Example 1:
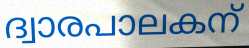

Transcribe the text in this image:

ദ്വാരപാലകന്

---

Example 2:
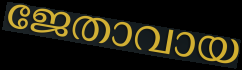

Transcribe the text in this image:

ജേതാവായ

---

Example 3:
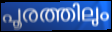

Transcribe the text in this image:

പൂരത്തിലും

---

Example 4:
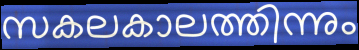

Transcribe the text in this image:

സകലകാലത്തിന്നും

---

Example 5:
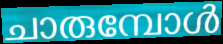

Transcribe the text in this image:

ചാരുമ്പോൾ